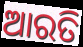
ଆରତି